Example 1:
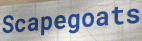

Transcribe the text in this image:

Scapegoats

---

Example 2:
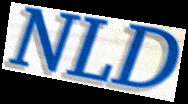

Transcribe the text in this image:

NLD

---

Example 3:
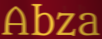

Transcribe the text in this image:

Abza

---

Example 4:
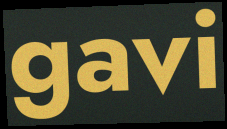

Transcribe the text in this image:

gavi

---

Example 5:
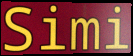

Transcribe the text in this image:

Simi